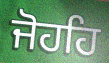
ਜੋਹਹਿ